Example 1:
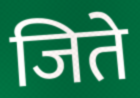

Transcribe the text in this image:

जिते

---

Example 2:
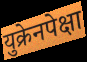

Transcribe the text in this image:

युक्रेनपेक्षा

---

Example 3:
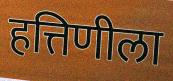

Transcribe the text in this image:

हत्तिणीला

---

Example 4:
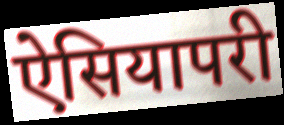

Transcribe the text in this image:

ऐसियापरी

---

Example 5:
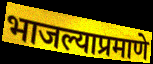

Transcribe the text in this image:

भाजल्याप्रमाणे